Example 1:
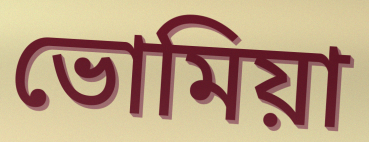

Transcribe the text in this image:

ভোমিয়া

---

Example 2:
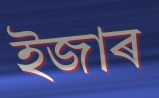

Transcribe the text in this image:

ইজাৰ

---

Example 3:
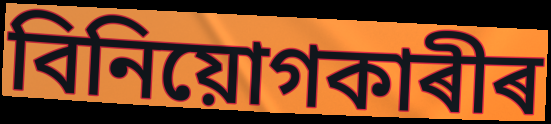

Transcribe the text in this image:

বিনিয়োগকাৰীৰ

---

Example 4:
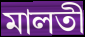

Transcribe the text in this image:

মালতী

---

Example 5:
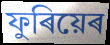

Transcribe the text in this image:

ফুৰিয়েৰ